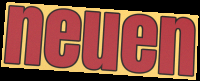
neuen